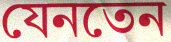
যেনতেন